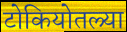
टोकियोतल्या